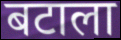
बटाला